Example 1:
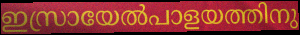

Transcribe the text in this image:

ഇസ്രായേൽപാളയത്തിനു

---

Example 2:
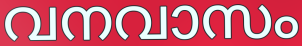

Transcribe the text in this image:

വനവാസം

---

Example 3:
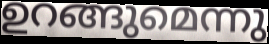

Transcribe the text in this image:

ഉറങ്ങുമെന്നു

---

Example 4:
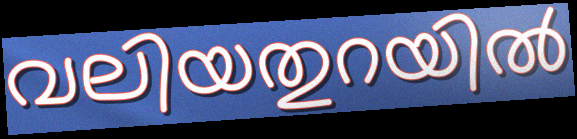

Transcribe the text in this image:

വലിയതുറയിൽ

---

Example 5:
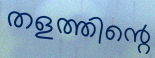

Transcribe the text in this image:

തളത്തിന്റെ